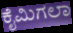
ಕೈಮಿಗಲಾ